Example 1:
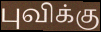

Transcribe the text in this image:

புவிக்கு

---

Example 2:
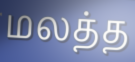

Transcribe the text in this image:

மலத்த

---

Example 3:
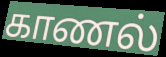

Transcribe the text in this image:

காணல்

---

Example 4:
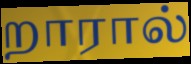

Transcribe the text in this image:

றாரால்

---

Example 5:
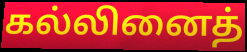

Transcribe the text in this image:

கல்லினைத்